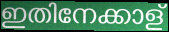
ഇതിനേക്കാള്